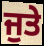
ਜੁਤੇ